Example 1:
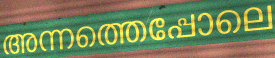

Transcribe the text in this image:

അന്നത്തെപ്പോലെ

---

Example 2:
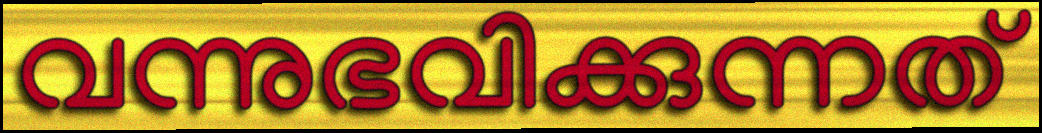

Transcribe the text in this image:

വന്നുഭവിക്കുന്നത്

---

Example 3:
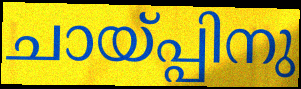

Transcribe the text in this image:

ചായ്പ്പിനു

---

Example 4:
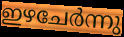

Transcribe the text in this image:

ഇഴചേർന്നു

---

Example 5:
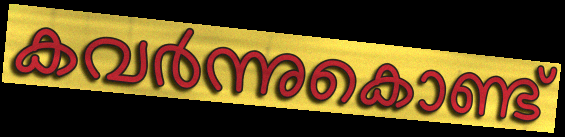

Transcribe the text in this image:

കവർന്നുകൊണ്ട്